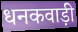
धनकवाड़ी